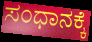
ಸಂಧಾನಕ್ಕೆ